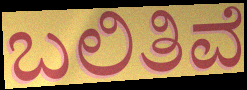
ಬಲಿತಿವೆ